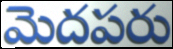
మెదపరు